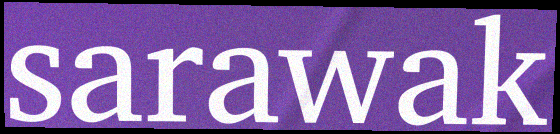
sarawak